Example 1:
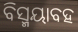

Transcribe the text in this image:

ବିସ୍ମୟାବହ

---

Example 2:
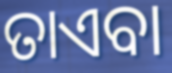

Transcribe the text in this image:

ତାଏବା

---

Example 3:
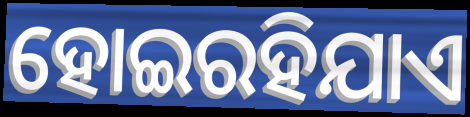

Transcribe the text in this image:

ହୋଇରହିଯାଏ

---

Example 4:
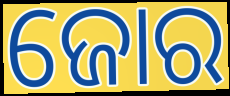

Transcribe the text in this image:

ଜୋର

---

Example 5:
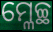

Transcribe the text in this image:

ମ୍ଳେଚ୍ଛ